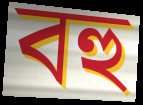
বহু